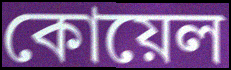
কোয়েল